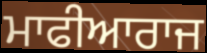
ਮਾਫੀਆਰਾਜ